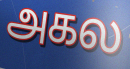
அகல